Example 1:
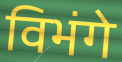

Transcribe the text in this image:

विभंगे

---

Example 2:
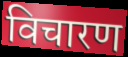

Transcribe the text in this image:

विचारण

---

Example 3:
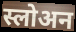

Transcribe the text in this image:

स्लोअन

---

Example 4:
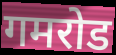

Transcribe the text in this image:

गमरोड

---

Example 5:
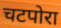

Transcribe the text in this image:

चटपोरा